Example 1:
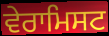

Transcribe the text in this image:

ਵੇਰਾਮਿਸਟ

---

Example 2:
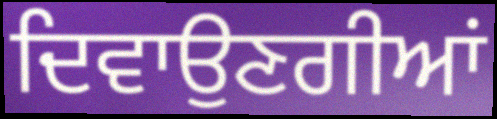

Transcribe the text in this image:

ਦਿਵਾਉਣਗੀਆਂ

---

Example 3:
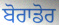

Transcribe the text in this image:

ਬੋਰਾਡੋਰ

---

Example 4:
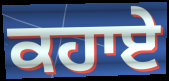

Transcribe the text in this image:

ਕਹਾਏ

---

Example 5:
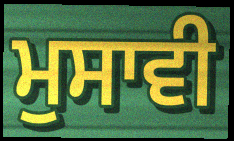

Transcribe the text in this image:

ਮੁਸਾਵੀ